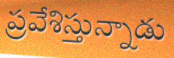
ప్రవేశిస్తున్నాడు